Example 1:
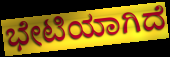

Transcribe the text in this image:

ಭೇಟಿಯಾಗಿದೆ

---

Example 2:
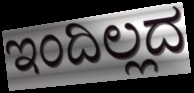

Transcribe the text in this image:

ಇಂದಿಲ್ಲದ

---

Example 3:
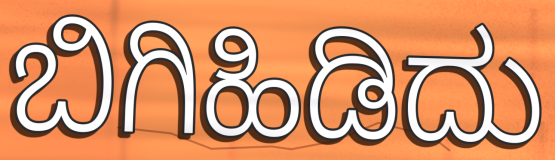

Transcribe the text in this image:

ಬಿಗಿಹಿಡಿದು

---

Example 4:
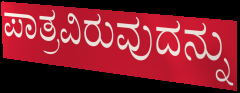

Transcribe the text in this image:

ಪಾತ್ರವಿರುವುದನ್ನು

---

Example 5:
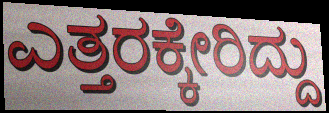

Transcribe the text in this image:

ಎತ್ತರಕ್ಕೇರಿದ್ದು